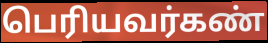
பெரியவர்கண்